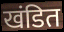
खंडित